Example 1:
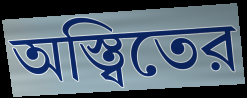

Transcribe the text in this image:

অস্ত্বিতের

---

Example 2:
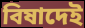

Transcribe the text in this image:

বিষাদেই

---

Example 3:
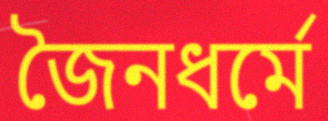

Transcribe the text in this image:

জৈনধর্মে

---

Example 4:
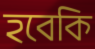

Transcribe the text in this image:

হবেকি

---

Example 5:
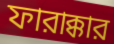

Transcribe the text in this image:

ফারাক্কার